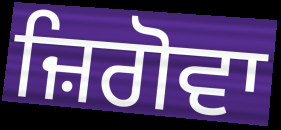
ਜ਼ਿਗੋਵਾ